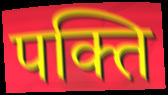
पक्ति